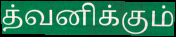
த்வனிக்கும்